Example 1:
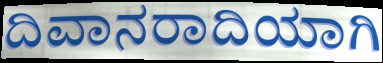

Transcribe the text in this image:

ದಿವಾನರಾದಿಯಾಗಿ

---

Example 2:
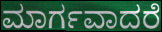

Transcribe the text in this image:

ಮಾರ್ಗವಾದರೆ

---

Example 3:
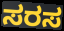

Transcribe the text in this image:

ಸರಸ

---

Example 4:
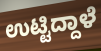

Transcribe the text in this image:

ಉಟ್ಟಿದ್ದಾಳೆ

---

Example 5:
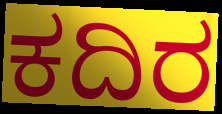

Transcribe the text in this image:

ಕದಿರ